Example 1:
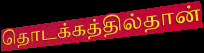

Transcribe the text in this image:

தொடக்கத்தில்தான்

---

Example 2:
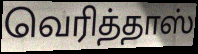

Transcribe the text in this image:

வெரித்தாஸ்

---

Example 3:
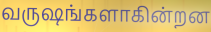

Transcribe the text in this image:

வருஷங்களாகின்றன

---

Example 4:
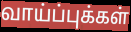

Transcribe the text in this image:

வாய்ப்புக்கள்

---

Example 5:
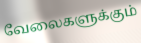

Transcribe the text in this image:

வேலைகளுக்கும்